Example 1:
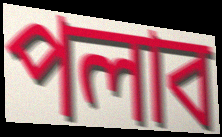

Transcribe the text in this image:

পলাব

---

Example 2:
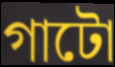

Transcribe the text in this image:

গাটো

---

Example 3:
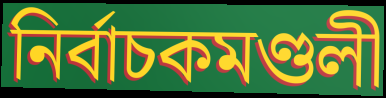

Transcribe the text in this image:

নিৰ্বাচকমণ্ডলী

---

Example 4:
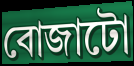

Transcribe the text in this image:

বোজাটো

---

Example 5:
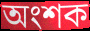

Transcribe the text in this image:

অংশক